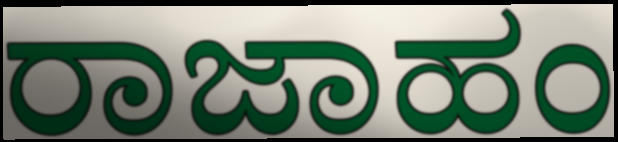
ರಾಜಾಹಂ